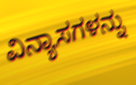
ವಿನ್ಯಾಸಗಳನ್ನು